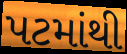
પટમાંથી